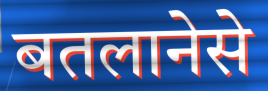
बतलानेसे